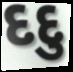
દદુ